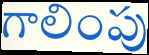
గాలింపు